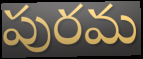
పురమ